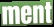
ment